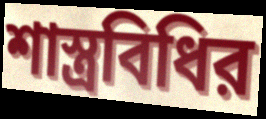
শাস্ত্রবিধির